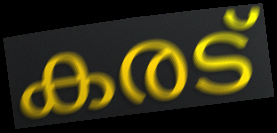
കരട്